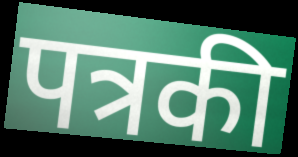
पत्रकी